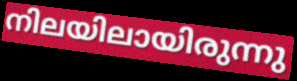
നിലയിലായിരുന്നു